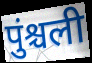
पुंश्चली